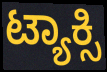
ಟ್ಯಾಕ್ಸಿ